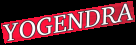
YOGENDRA